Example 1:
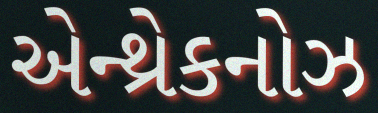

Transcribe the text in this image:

એન્થ્રેકનોઝ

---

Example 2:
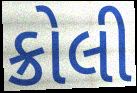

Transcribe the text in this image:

ક્રોલી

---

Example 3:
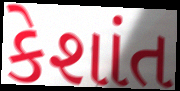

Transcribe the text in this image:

કેશાંત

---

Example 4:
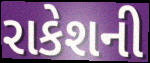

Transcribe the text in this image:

રાકેશની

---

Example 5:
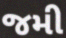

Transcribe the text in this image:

જમી